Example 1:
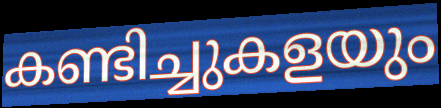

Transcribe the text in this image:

കണ്ടിച്ചുകളയും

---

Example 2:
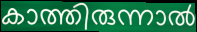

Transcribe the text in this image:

കാത്തിരുന്നാൽ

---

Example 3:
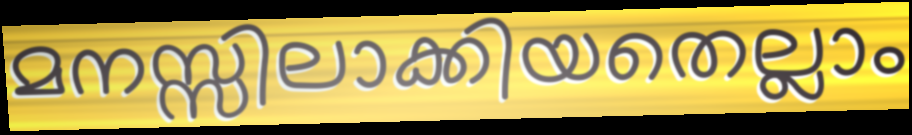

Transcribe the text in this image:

മനസ്സിലാക്കിയതെല്ലാം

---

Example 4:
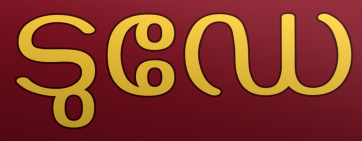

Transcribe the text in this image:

ടുഡേ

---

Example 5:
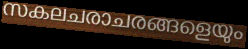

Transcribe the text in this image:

സകലചരാചരങ്ങളെയും